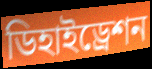
ডিহাইড্রেশন